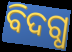
ବିଦଗ୍ଧ